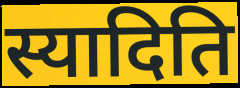
स्यादिति